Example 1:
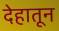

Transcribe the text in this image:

देहातून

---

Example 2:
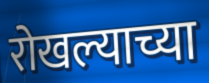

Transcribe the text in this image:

रोखल्याच्या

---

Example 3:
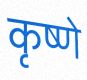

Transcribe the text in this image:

कृष्णे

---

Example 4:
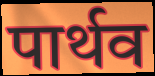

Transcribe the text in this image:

पार्थव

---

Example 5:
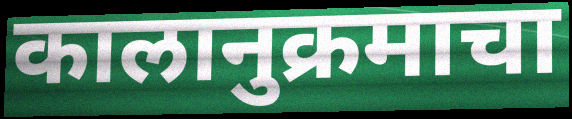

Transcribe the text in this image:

कालानुक्रमाचा